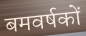
बमवर्षकों